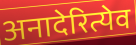
अनादेरित्येव